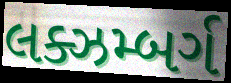
લક્ઝમ્બર્ગ